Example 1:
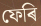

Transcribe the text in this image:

ফেৰি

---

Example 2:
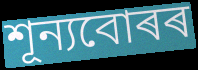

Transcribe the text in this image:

শূন্যবোৰৰ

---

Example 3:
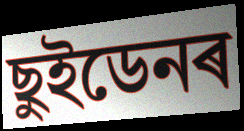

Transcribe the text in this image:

ছুইডেনৰ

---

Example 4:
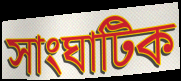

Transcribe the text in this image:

সাংঘাটিক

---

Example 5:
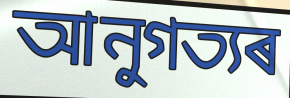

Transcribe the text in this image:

আনুগত্যৰ